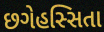
છગેહસ્સિતા